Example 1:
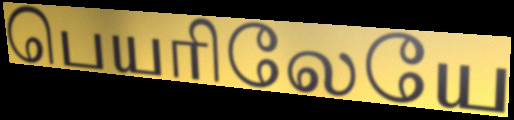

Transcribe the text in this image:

பெயரிலேயே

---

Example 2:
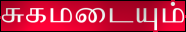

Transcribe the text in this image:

சுகமடையும்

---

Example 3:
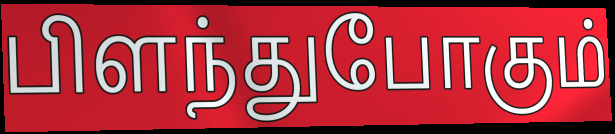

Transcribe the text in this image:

பிளந்துபோகும்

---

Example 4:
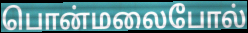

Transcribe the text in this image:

பொன்மலைபோல்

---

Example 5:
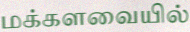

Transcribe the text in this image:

மக்களவையில்